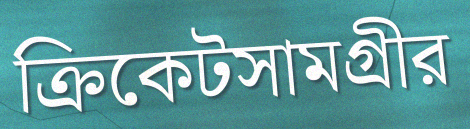
ক্রিকেটসামগ্রীর